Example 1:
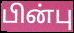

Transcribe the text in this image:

பின்பு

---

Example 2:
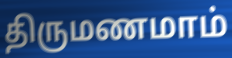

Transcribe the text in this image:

திருமணமாம்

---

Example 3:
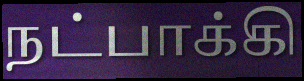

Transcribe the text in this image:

நட்பாக்கி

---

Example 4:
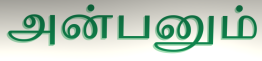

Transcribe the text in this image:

அன்பனும்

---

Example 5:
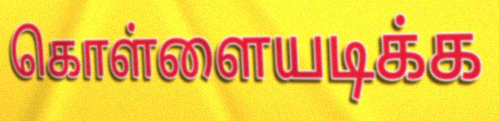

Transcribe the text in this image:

கொள்ளையடிக்க